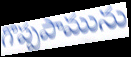
గొప్పపామును